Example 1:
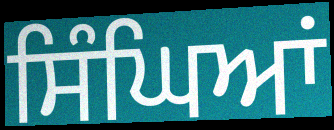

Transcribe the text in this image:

ਸਿੰਘਿਆਂ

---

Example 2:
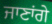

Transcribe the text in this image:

ਜਾਣਾਂਗੇ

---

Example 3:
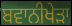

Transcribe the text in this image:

ਬਵਾਨੀਖੇੜਾ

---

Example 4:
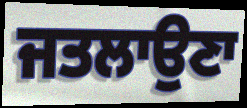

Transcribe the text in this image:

ਜਤਲਾਉਣਾ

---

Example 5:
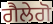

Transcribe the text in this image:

ਗੈਲੇਗੋ